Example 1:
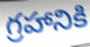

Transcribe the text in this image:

గ్రహానికి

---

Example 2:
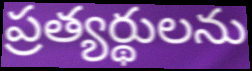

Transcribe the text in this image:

ప్రత్యర్థులను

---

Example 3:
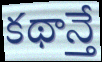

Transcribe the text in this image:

కథాన్తే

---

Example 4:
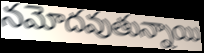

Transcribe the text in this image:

నమోదవుతున్నాయి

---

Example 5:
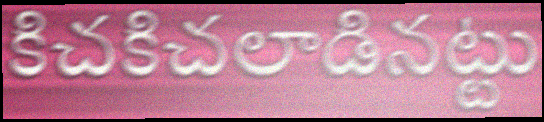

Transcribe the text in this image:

కిచకిచలాడినట్టు